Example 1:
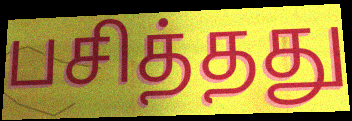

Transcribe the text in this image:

பசித்தது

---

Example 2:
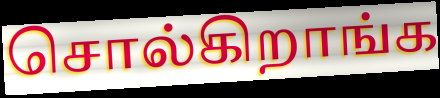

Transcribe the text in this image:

சொல்கிறாங்க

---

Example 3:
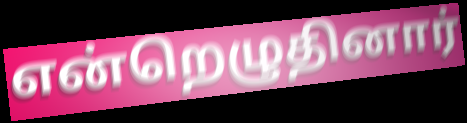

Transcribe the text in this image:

என்றெழுதினார்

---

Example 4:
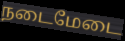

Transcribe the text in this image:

நடைமேடை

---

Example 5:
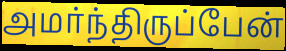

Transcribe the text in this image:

அமர்ந்திருப்பேன்